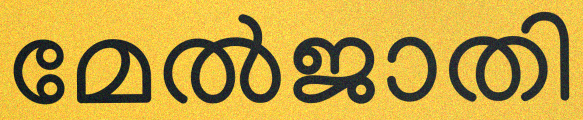
മേൽജാതി